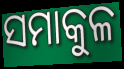
ସମାକୁଳ